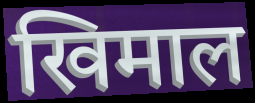
खिमाल